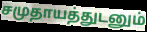
சமுதாயத்துடனும்